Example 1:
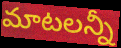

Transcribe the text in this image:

మాటలన్నీ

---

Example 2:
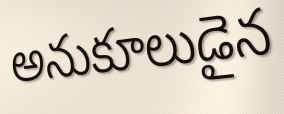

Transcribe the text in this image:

అనుకూలుడైన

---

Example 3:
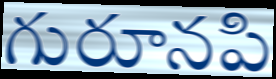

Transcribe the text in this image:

గురూనపి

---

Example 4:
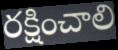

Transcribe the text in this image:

రక్షించాలి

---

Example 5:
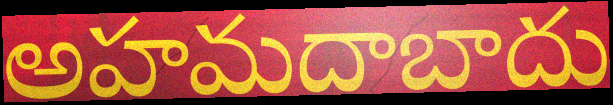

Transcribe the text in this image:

అహమదాబాదు